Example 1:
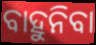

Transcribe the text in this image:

ବାହୁନିବା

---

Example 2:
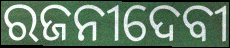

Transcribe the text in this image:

ରଜନୀଦେବୀ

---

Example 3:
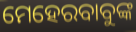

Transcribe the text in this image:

ମେହେରବାବୁଙ୍କ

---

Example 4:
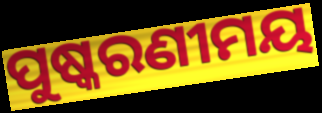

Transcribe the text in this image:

ପୁଷ୍କରଣୀମୟ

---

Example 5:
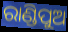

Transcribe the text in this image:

ରାଣ୍ଡିପୁଅ